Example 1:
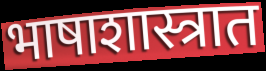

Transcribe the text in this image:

भाषाशास्त्रात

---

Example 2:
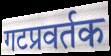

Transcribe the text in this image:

गटप्रवर्तक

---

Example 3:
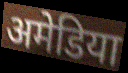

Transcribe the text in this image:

अमेडिया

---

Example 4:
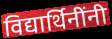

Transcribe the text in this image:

विद्यार्थिनींनी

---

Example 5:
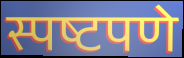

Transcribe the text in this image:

स्‍पष्‍टपणे